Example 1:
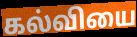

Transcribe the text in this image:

கல்வியை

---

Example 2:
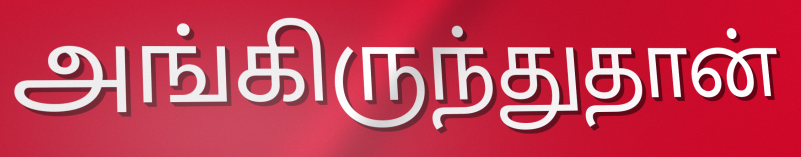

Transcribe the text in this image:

அங்கிருந்துதான்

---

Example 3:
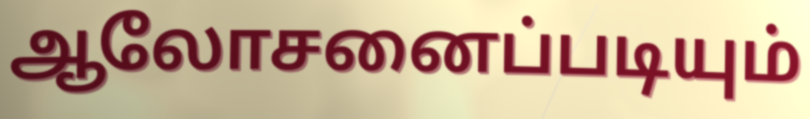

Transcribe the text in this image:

ஆலோசனைப்படியும்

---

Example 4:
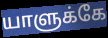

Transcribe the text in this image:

யாளுக்கே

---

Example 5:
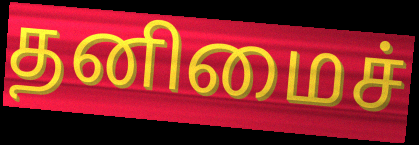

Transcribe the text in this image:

தனிமைச்